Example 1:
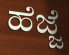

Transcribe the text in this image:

ಹೆಜ್ಜೆ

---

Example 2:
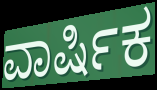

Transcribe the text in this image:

ವಾರ್ಷಿಕ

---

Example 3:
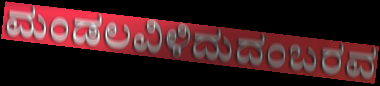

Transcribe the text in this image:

ಮಂಡಲವಿಳಿದುದಂಬರವ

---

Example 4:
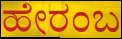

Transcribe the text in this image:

ಹೇರಂಬ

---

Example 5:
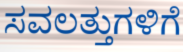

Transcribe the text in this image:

ಸವಲತ್ತುಗಳಿಗೆ